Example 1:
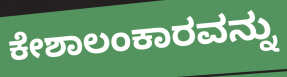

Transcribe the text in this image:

ಕೇಶಾಲಂಕಾರವನ್ನು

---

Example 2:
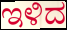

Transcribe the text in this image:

ಇಳಿದ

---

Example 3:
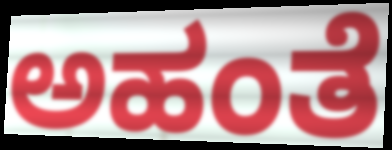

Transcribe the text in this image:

ಅಹಂತೆ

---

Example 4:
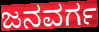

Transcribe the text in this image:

ಜನವರ್ಗ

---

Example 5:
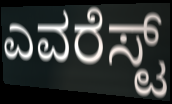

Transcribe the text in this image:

ಎವರೆಸ್ಟ್